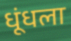
धूंधला